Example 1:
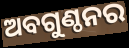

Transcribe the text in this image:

ଅବଗୁଣ୍ଠନର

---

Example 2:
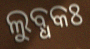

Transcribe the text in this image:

ଲୁବ୍ଧକଃ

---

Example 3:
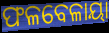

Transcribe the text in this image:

ଫଳବେଳାୟା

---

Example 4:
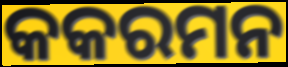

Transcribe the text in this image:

କକରମନ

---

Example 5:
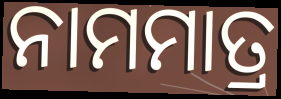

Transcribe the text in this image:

ନାମମାତ୍ର